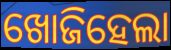
ଖୋଜିହେଲା